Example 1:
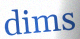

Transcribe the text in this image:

dims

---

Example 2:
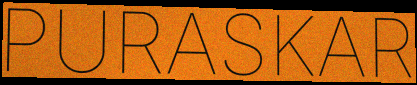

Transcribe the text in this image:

PURASKAR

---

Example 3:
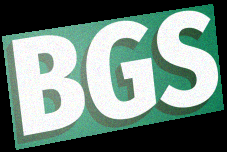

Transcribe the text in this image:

BGS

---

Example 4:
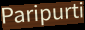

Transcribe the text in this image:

Paripurti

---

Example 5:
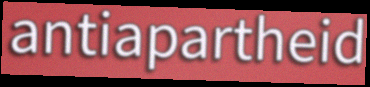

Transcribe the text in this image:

antiapartheid